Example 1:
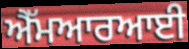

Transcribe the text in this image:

ਐੱਮਆਰਆਈ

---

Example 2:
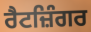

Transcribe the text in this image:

ਰੈਟਜ਼ਿੰਗਰ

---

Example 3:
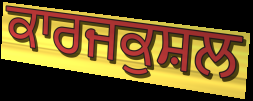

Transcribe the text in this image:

ਕਾਰਜਕੁਸ਼ਲ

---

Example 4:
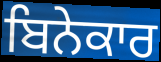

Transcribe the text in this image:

ਬਿਨੇਕਾਰ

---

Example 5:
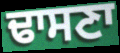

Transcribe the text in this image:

ਢਾਸਣਾ